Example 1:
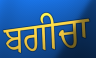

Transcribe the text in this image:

ਬਗੀਚਾ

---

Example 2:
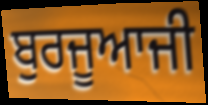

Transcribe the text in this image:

ਬੁਰਜੂਆਜੀ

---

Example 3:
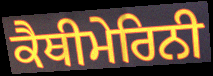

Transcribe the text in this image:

ਕੈਥੀਮੇਰਿਨੀ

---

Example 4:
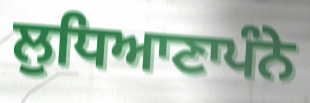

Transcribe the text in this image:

ਲੁਧਿਆਣਾਪੰਨੇ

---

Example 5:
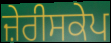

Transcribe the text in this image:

ਜ਼ੇਰੀਸਕੇਪ